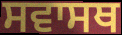
ਸਵਾਸਥ